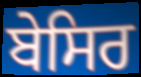
ਬੇਸਿਰ